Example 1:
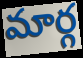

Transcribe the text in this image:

మార్గ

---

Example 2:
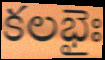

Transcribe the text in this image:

కలభైః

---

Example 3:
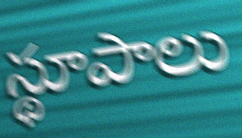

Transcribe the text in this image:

స్థూపాలు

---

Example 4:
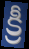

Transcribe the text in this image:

క్రీ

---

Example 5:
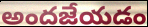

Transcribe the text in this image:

అందజేయడం